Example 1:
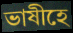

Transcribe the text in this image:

ভাষীহে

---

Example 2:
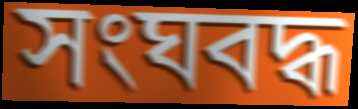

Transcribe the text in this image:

সংঘবদ্ধ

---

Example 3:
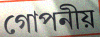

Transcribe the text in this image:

গোপনীয়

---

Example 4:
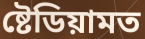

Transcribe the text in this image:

ষ্টেডিয়ামত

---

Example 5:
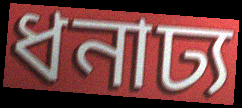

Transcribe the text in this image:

ধনাঢ্য